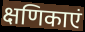
क्षणिकाएं